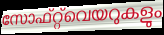
സോഫ്റ്റ്‌വെയറുകളും